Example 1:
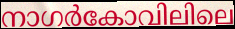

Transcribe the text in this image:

നാഗർകോവിലിലെ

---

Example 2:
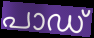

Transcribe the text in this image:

പാഡ്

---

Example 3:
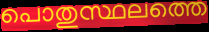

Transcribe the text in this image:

പൊതുസ്ഥലത്തെ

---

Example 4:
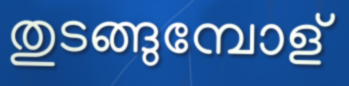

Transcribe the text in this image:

തുടങ്ങുമ്പോള്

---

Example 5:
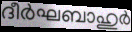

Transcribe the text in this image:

ദീർഘബാഹുർ